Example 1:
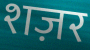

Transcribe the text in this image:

शज़र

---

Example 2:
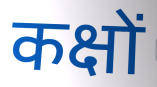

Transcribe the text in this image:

कक्षों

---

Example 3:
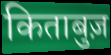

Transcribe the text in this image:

किताबुज़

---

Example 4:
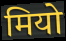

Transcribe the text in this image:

मियो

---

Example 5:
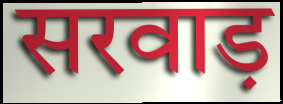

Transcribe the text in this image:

सरवाड़